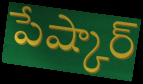
పేష్కార్